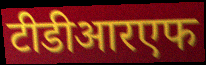
टीडीआरएफ